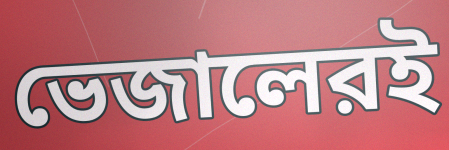
ভেজালেরই